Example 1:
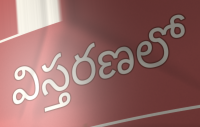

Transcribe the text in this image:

విస్తరణలో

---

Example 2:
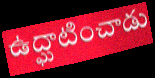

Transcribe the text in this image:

ఉద్ఘాటించాడు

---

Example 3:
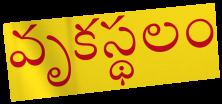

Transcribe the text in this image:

వృకస్థలం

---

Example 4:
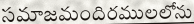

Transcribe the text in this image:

సమాజమందిరములలోను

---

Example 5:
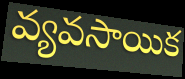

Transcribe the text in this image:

వ్యవసాయిక